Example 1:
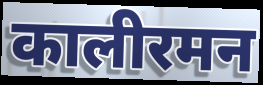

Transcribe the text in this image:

कालीरमन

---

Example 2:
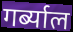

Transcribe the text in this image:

गर्ब्याल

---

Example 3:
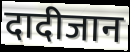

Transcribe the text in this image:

दादीजान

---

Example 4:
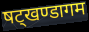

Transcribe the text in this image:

षट्खण्डागम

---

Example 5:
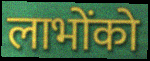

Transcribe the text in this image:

लाभोंको